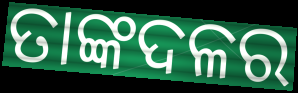
ତାଙ୍କଦଳର